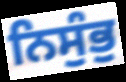
ਨਿਸੁੰਭੁ